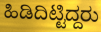
ಹಿಡಿದಿಟ್ಟಿದ್ದರು